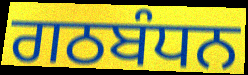
ਗਠਬੰਧਨ